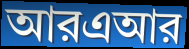
আরএআর